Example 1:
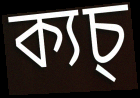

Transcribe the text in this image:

ক্যচ্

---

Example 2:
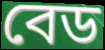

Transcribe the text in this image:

বেড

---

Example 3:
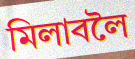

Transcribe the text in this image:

মিলাবলৈ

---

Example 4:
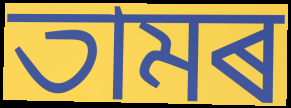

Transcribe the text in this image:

তামৰ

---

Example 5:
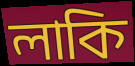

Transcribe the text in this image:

লাকি